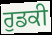
ਰੁਡਕੀ